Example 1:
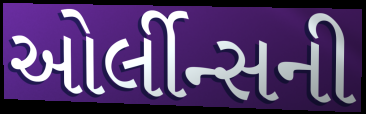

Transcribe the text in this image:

ઓર્લીન્સની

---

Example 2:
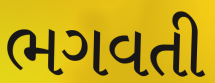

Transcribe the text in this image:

ભગવતી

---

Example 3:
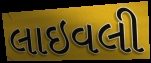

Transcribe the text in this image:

લાઇવલી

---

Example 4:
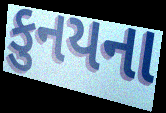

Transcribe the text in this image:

કુનયના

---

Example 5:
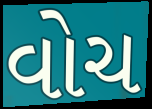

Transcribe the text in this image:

વોચ